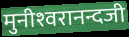
मुनीश्वरानन्दजी